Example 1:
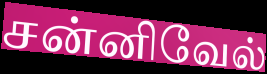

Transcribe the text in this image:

சன்னிவேல்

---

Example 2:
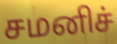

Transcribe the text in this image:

சமனிச்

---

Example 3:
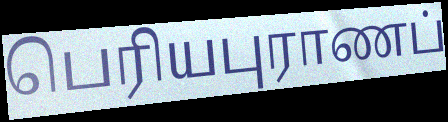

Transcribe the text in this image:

பெரியபுராணப்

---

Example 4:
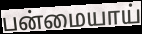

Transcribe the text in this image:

பன்மையாய்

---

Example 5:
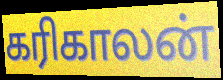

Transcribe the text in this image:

கரிகாலன்